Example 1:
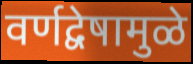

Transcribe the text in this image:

वर्णद्वेषामुळे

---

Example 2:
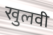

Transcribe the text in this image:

खुलवी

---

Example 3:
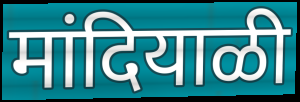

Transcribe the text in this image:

मांदियाळी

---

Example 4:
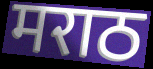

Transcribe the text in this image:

मराठ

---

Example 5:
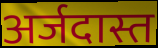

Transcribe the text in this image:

अर्जदास्त